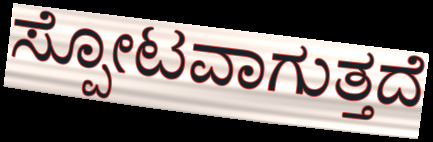
ಸ್ಪೋಟವಾಗುತ್ತದೆ